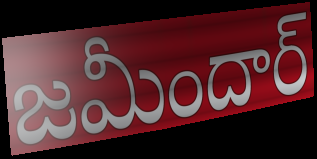
జమీందార్